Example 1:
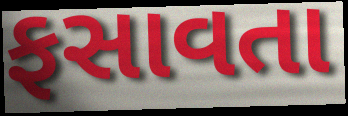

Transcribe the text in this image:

ફસાવતા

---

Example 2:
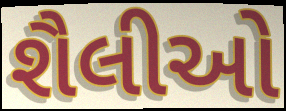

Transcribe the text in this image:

શૈલીઓ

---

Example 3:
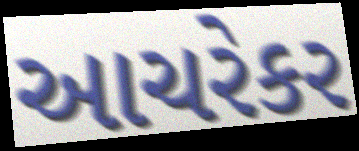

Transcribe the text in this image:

આચરેકર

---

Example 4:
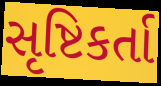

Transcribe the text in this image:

સૃષ્ટિકર્તા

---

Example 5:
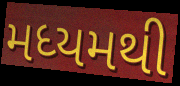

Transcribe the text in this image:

મધ્યમથી